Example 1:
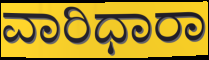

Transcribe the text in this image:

ವಾರಿಧಾರಾ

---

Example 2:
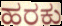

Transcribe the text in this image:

ಹರಕು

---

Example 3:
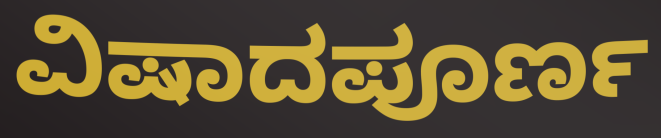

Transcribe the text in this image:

ವಿಷಾದಪೂರ್ಣ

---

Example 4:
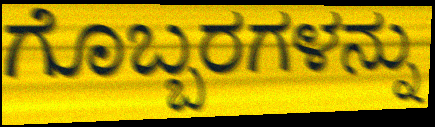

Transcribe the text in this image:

ಗೊಬ್ಬರಗಳನ್ನು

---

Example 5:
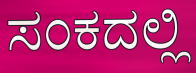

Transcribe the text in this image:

ಸಂಕದಲ್ಲಿ